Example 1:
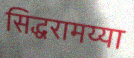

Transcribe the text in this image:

सिद्धरामय्या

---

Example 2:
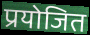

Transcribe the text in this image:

प्रयोजित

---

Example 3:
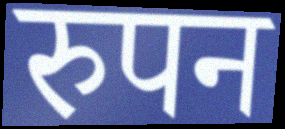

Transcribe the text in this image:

रुपन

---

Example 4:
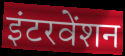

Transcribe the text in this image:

इंटरवेंशन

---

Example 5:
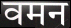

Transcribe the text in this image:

वमन